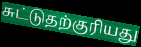
சுட்டுதற்குரியது